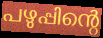
പഴുപ്പിന്റെ